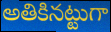
అతికినట్టుగా